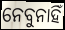
ନେବୁନାହିଁ